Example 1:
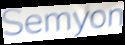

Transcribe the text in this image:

Semyon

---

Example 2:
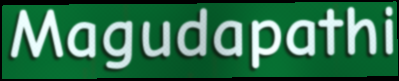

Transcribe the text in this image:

Magudapathi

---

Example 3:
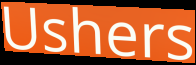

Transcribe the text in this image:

Ushers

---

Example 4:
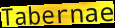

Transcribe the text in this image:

Tabernae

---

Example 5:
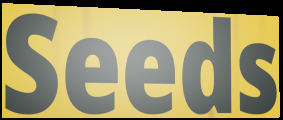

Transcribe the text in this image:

Seeds